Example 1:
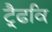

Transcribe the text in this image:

ਟ੍ਰੈਫਕਿ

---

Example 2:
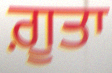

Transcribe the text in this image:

ਗ਼ੂਤਾ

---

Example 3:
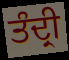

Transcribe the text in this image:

ਤੰਦ੍ਰੀ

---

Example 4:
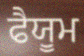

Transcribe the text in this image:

ਫੈਯੂਮ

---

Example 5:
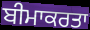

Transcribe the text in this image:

ਬੀਮਾਕਰਤਾ